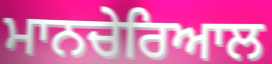
ਮਾਨਚੇਰਿਆਲ